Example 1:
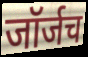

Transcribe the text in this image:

जॉर्जच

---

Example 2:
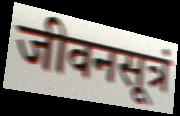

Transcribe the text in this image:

जीवनसूत्रं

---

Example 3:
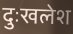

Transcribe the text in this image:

दुःखलेश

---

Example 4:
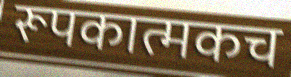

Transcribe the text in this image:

रूपकात्मकच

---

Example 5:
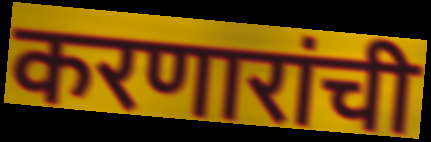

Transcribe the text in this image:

करणारांची